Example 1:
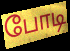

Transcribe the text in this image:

போடி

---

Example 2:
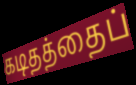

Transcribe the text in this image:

கடிதத்தைப்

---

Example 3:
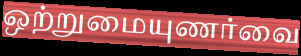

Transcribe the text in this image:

ஒற்றுமையுணர்வை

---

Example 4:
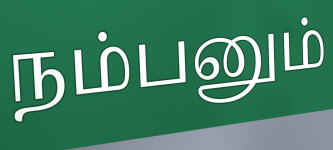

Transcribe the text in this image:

நம்பனும்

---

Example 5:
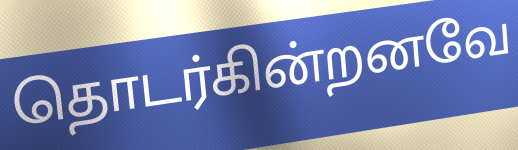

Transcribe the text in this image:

தொடர்கின்றனவே